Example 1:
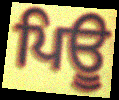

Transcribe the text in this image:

ਪਿਊ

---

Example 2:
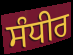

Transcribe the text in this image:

ਸੰਧੀਰ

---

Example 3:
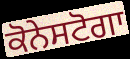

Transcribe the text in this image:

ਕੋਨੇਸਟੋਗਾ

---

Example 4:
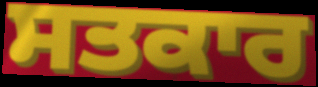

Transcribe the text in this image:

ਸਤਕਾਰ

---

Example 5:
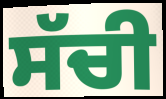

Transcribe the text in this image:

ਸੱਚੀ